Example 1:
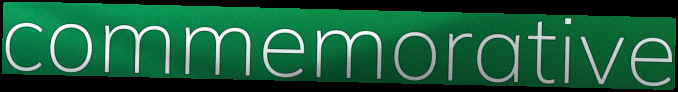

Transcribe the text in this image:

commemorative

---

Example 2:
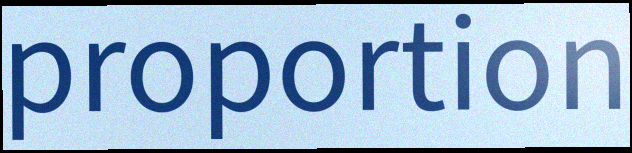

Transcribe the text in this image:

proportion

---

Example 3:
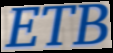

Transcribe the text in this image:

ETB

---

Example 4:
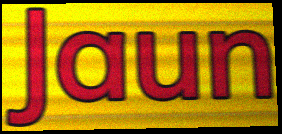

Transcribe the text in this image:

Jaun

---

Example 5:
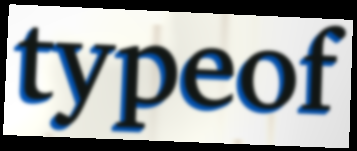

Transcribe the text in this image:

typeof